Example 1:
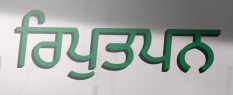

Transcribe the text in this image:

ਰਿਪੁਤਪਨ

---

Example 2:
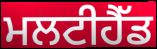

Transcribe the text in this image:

ਮਲਟੀਹੈੱਡ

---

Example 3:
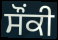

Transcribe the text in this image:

ਸੌਂਕੀ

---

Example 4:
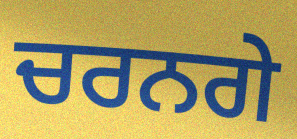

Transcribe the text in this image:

ਚਰਨਗੇ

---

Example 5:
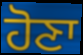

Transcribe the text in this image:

ਹੋਣਾ